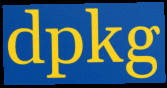
dpkg